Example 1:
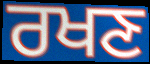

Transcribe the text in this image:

ਰਖਣ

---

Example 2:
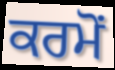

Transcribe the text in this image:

ਕਰਮੋਂ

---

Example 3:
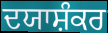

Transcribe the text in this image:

ਦਯਾਸ਼ੰਕਰ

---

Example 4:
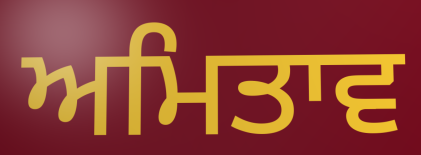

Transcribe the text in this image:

ਅਮਿਤਾਵ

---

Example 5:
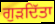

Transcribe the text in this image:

ਗੁੜਦਿੱਤਾ